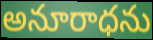
అనూరాధను